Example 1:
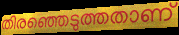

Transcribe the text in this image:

തിരഞ്ഞെടുത്തതാണ്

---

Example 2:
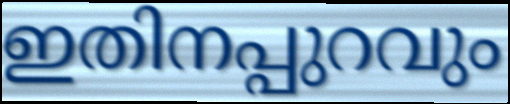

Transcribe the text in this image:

ഇതിനപ്പുറവും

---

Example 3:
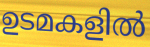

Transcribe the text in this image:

ഉടമകളിൽ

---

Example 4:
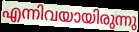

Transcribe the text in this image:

എന്നിവയായിരുന്നു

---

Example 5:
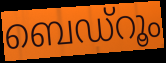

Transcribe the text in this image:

ബെഡ്റൂം